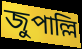
জুপাল্লি